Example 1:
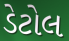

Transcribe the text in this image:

ડેટોલ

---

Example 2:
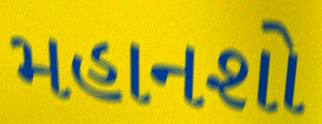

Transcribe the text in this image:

મહાનશો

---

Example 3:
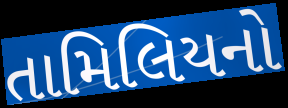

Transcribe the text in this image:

તામિલિયનો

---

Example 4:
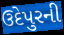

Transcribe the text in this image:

ઉદેપુરની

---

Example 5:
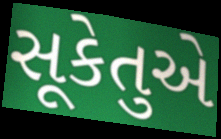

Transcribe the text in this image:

સૂકેતુએ